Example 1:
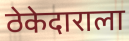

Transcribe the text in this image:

ठेकेदाराला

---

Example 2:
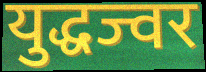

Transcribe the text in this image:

युद्धज्वर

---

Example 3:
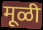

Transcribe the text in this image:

मूळी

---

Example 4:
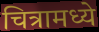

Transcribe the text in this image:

चित्रामध्ये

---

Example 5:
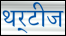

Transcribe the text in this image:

थर्टीज